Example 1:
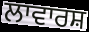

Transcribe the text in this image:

ਲਾਵਾਰਸ਼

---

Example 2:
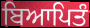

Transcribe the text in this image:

ਬਿਆਪਿਤੰ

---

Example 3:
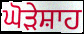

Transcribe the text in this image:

ਘੋੜੇਸ਼ਾਹ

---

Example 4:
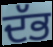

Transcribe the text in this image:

ਦੱਭ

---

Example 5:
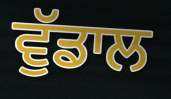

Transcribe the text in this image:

ਵੁੱਡਾਲ